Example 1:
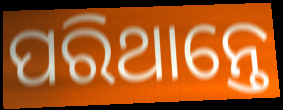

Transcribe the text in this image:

ପରିଥାନ୍ତେ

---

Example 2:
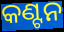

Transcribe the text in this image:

କଣ୍ଟନ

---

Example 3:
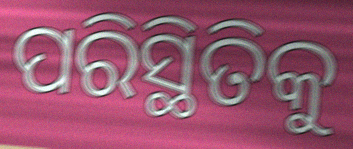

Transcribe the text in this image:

ପରିସ୍ଥିତିକୁ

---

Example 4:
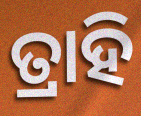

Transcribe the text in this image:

ତ୍ରାହି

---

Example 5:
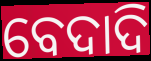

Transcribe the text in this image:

ବେଦାଦି